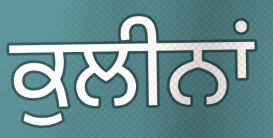
ਕੁਲੀਨਾਂ